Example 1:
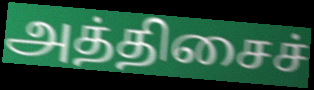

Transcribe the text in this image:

அத்திசைச்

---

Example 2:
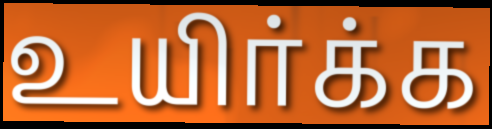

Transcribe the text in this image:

உயிர்க்க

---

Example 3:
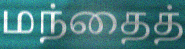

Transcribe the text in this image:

மந்தைத்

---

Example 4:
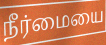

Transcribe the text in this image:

நீர்மையை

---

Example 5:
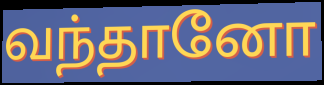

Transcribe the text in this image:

வந்தானோ